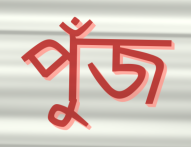
পুঁজ